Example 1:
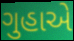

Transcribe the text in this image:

ગુહાએ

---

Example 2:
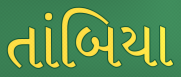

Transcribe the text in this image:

તાંબિયા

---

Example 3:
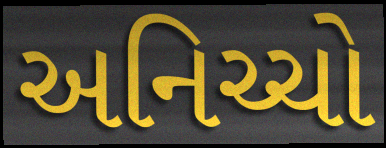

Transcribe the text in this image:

અનિચ્ચો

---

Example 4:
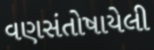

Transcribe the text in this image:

વણસંતોષાયેલી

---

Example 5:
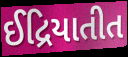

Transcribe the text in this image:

ઈદ્રિયાતીત